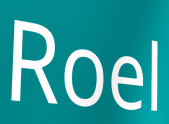
Roel